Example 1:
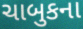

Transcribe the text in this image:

ચાબુકના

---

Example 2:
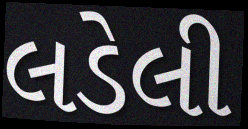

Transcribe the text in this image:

લડેલી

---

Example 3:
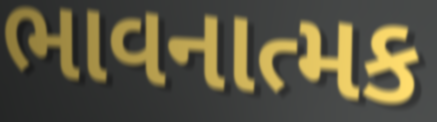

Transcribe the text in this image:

ભાવનાત્મક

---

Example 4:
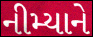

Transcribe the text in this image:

નીમ્યાને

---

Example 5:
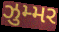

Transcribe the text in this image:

ઝુમ્મર